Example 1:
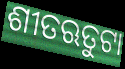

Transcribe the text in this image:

ଶୀତଋତୁଟା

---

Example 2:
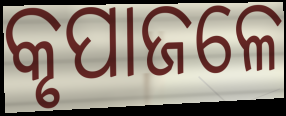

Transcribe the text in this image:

କୃପାଜଳେ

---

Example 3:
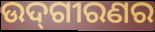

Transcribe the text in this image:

ଉଦ୍‌ଗୀରଣର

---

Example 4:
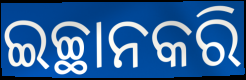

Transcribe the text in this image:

ଇଚ୍ଛାନକରି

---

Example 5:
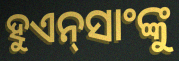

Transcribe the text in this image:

ହୁଏନ୍‌ସାଂଙ୍କୁ